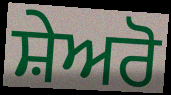
ਸ਼ੇਅਰੋ